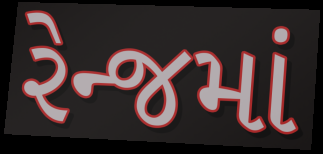
રેન્જમાં